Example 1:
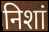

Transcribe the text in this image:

निशां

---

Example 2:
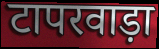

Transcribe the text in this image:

टापरवाड़ा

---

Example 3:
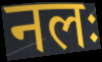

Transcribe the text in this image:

नलः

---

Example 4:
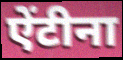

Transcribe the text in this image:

ऐंटीना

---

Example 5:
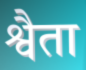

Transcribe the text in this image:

श्वैता